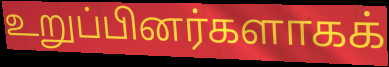
உறுப்பினர்களாகக்